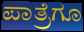
ಪಾತ್ರೆಗೂ